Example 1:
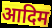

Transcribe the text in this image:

आदिम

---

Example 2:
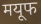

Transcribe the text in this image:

मयूफ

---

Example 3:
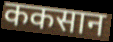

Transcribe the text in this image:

ककसान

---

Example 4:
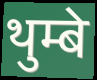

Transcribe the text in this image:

थुम्बे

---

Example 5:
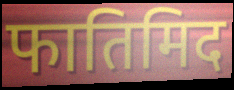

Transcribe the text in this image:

फातिमिद